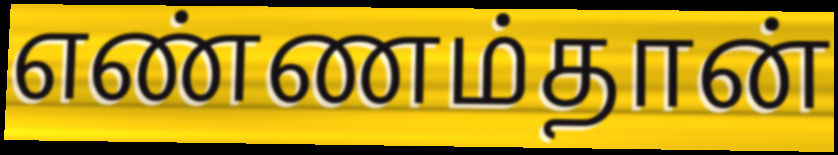
எண்ணம்தான்